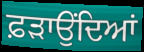
ਫ਼ੜਾਉਂਦਿਆਂ